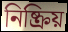
নিষ্ক্রিয়